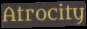
Atrocity